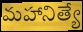
మహానిత్యే